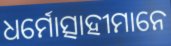
ଧର୍ମୋତ୍ସାହୀମାନେ